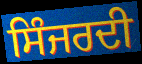
ਸਿੰਜਰਦੀ